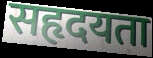
सहृदयता